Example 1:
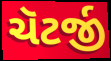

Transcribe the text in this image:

ચૅટર્જી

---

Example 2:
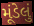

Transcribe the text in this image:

મૂંડેલું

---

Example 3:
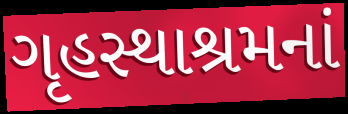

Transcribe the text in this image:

ગૃહસ્થાશ્રમનાં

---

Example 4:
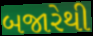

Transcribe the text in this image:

બજારેથી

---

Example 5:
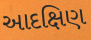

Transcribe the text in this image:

આદક્ષિણ